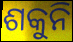
ଶକୁନି